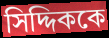
সিদ্দিককে